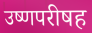
उष्णपरीषह